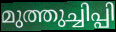
മുത്തുച്ചിപ്പി